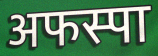
अफस्पा